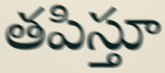
తపిస్తూ